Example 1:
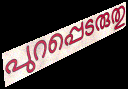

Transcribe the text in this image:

പുറപ്പെടരുതു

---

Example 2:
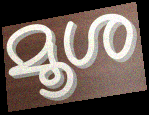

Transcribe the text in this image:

മൂശ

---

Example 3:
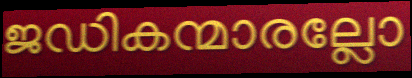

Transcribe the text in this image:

ജഡികന്മാരല്ലോ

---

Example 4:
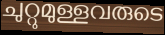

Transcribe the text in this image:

ചുറ്റുമുള്ളവരുടെ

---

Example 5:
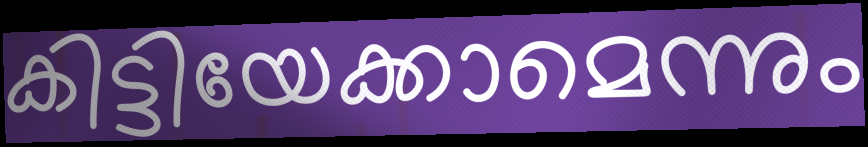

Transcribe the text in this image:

കിട്ടിയേക്കാമെന്നും